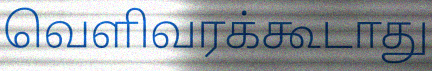
வெளிவரக்கூடாது